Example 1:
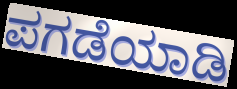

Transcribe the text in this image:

ಪಗಡೆಯಾಡಿ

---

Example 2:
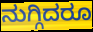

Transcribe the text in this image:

ನುಗ್ಗಿದರೂ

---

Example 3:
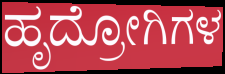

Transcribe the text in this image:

ಹೃದ್ರೋಗಿಗಳ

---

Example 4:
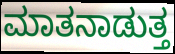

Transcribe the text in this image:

ಮಾತನಾಡುತ್ತ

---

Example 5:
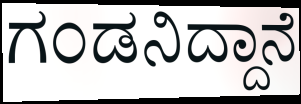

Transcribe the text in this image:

ಗಂಡನಿದ್ದಾನೆ